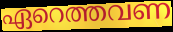
ഏറെത്തവണ